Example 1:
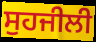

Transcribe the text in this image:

ਸੁਹਜੀਲੀ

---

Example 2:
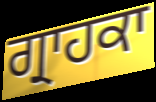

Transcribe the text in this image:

ਗ੍ਰਾਹਕਾ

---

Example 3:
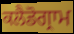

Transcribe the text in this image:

ਕਲੈਡੋਗ੍ਰਾਮ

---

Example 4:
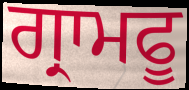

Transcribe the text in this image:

ਗ੍ਰਾਮਫੂ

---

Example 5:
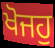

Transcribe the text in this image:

ਖੋਜਹੁ